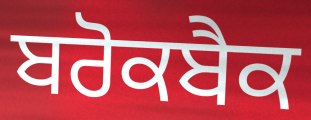
ਬਰੋਕਬੈਕ